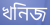
খনিজ